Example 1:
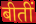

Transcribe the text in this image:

बीतीं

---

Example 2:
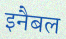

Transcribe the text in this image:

इनैबल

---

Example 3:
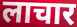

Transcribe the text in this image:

लाचार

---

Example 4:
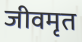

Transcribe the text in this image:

जीवमृत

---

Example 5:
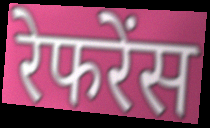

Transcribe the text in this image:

रेफरेंस